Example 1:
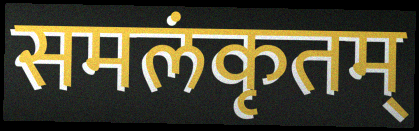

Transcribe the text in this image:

समलंकृतम्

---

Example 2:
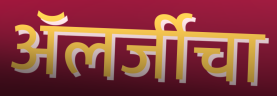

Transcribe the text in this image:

ॲलर्जीचा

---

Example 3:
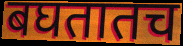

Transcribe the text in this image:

बघतातच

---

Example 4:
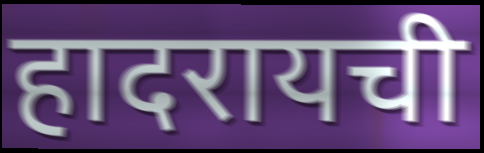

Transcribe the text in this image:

हादरायची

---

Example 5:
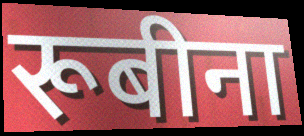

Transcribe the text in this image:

रूबीना